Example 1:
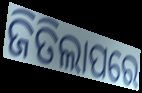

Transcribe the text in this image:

ଜିତିଲାପରେ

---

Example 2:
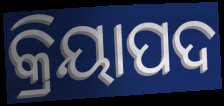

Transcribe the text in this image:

କ୍ରିୟାପଦ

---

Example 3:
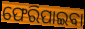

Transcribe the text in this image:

ଫେରିପାଇବା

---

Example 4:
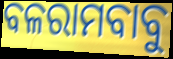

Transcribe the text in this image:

ବଳରାମବାବୁ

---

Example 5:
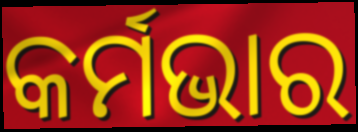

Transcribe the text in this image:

କର୍ମଭାର